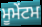
ਮੂਮੇਂਟਮ